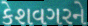
કેશવગરને